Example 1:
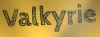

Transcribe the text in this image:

Valkyrie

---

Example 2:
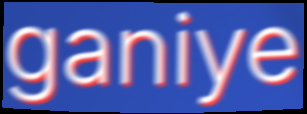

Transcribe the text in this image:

ganiye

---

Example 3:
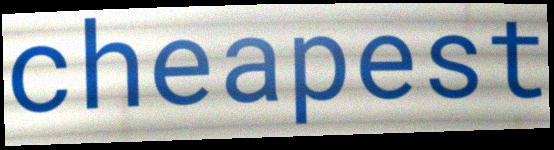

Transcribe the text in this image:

cheapest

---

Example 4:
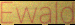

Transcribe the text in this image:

Ewald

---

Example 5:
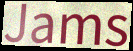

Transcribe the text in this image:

Jams